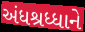
અંધશ્રધ્ધાને